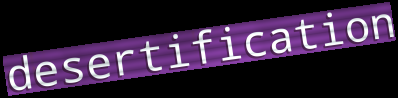
desertification